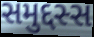
સમુદ્દસ્સ